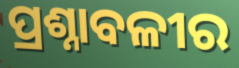
ପ୍ରଶ୍ନାବଳୀର